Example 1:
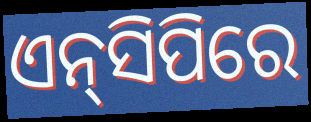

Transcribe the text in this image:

ଏନ୍‌ସିପିରେ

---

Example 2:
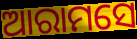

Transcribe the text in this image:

ଆରାମସେ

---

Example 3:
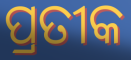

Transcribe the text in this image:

ପ୍ରତୀକ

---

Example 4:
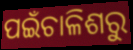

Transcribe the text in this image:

ପଇଁଚାଳିଶରୁ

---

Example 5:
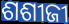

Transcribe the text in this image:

ଶଶୀଜୀ